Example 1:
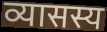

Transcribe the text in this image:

व्यासस्य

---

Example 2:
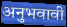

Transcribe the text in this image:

अनुभवावी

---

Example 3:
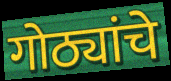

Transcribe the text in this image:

गोठ्यांचे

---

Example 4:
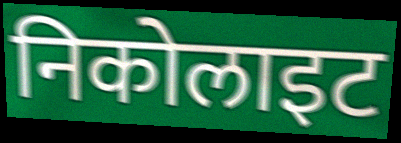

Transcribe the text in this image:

निकोलाइट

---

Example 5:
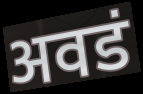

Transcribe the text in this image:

अवडं